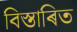
বিস্তাৰিত